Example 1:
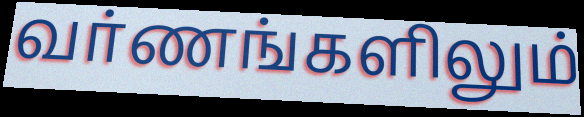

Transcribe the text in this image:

வர்ணங்களிலும்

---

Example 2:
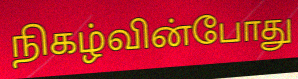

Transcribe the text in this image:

நிகழ்வின்போது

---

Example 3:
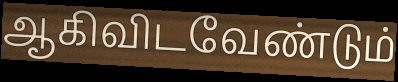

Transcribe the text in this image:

ஆகிவிடவேண்டும்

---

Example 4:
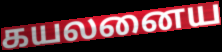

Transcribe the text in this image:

கயலனைய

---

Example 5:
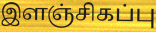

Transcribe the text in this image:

இளஞ்சிகப்பு